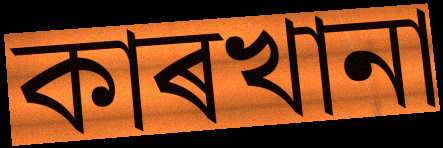
কাৰখানা